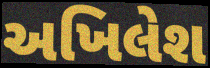
અખિલેશ